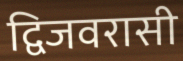
द्विजवरासी